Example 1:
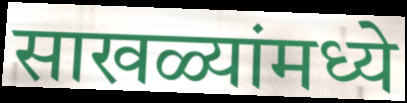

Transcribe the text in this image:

साखळ्यांमध्ये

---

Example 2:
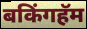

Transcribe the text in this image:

बकिंगहॅम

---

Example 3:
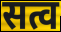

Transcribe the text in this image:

सत्व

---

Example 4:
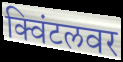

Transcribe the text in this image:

क्विंटलवर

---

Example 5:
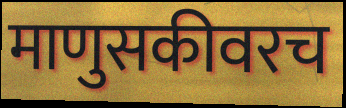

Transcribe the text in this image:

माणुसकीवरच